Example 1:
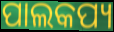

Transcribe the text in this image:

ପାଲକପ୍ୟ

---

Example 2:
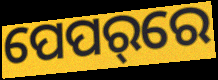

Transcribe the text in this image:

ପେପର୍‌ରେ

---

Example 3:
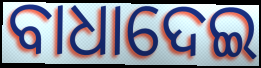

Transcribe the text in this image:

ବାଧାଦେଇ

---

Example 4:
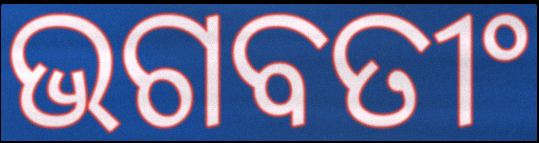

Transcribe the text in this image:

ଭଗବତୀଂ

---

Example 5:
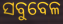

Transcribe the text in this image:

ସବୁବେଳ